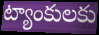
ట్యాంకులకు